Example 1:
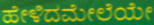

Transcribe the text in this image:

ಹೇಳಿದಮೇಲೆಯೇ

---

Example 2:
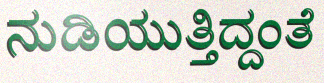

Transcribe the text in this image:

ನುಡಿಯುತ್ತಿದ್ದಂತೆ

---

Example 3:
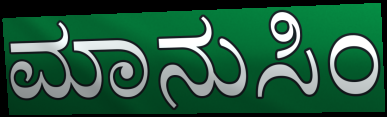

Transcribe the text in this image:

ಮಾನುಸಿಂ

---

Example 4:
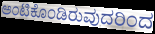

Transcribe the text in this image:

ಅಂಟಿಕೊಂಡಿರುವುದರಿಂದ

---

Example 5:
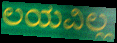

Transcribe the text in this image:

ಲಯವಿಲ್ಲ